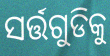
ସର୍ତ୍ତଗୁଡିକୁ